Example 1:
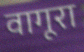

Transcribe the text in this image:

वागूरा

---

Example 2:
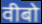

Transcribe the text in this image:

वीबो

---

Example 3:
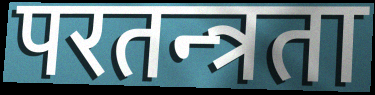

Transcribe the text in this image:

परतन्त्रता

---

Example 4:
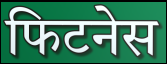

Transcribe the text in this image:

फिटनेस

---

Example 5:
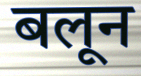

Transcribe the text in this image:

बलून